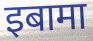
इबामा